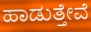
ಹಾಡುತ್ತೇವೆ